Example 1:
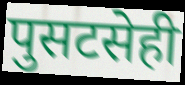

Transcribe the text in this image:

पुसटसेही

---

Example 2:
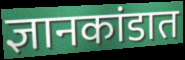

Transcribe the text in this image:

ज्ञानकांडात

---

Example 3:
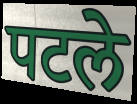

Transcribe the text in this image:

पटले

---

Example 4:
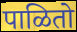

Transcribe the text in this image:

पाळितो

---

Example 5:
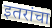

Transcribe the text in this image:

इतरांचा